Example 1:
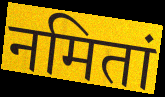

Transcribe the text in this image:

नमितां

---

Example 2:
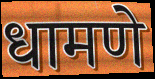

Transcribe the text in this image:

धामणे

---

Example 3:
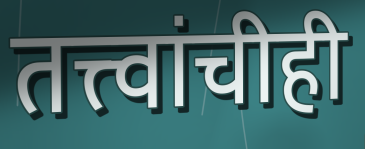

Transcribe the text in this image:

तत्त्वांचीही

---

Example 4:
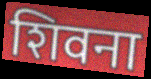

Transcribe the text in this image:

शिवना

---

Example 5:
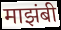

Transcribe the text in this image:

माझंबी